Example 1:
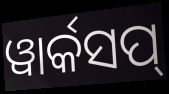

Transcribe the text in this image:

ୱାର୍କସପ୍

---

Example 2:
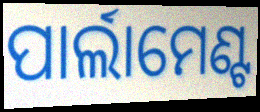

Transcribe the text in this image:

ପାର୍ଲାମେଣ୍ଟ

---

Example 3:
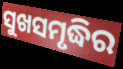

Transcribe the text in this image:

ସୁଖସମୃଦ୍ଧିର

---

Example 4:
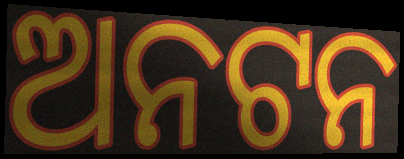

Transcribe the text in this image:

ଅନଟନ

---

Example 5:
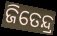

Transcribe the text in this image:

ଜିତେନ୍ଦ୍ର